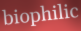
biophilic